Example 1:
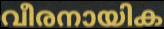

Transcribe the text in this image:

വീരനായിക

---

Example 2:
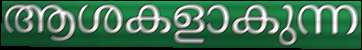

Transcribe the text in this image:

ആശകളാകുന്ന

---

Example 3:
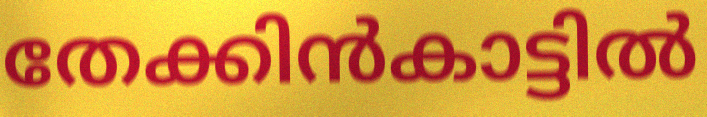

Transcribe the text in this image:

തേക്കിൻകാട്ടിൽ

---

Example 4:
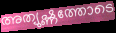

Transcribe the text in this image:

അത്യുഷ്ണത്തോടെ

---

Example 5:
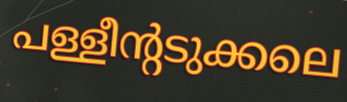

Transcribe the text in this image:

പള്ളീന്റടുക്കലെ